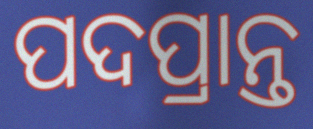
ପଦପ୍ରାନ୍ତ